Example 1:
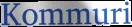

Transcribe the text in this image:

Kommuri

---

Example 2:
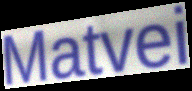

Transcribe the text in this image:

Matvei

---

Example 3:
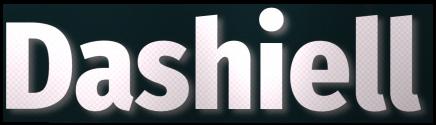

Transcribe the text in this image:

Dashiell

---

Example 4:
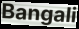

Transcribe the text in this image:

Bangali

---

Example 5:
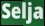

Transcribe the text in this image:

Selja